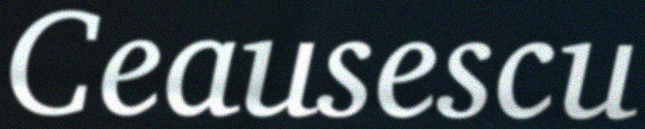
Ceausescu